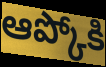
ఆప్కోకి